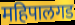
महिपालगड